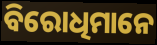
ବିରୋଧିମାନେ